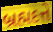
બ્રહ્મદત્તે